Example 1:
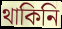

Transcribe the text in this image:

থাকিনি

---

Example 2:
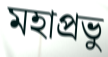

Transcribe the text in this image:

মহাপ্রভু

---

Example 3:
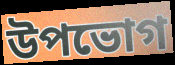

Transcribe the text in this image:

উপভোগ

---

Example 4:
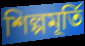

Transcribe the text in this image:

শিল্পমূর্তি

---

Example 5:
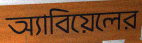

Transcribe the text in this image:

অ্যাবিয়েলের